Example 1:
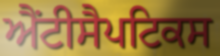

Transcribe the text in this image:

ਐਂਟੀਸੈਪਟਿਕਸ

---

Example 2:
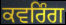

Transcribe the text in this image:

ਕਵਰਿੰਗ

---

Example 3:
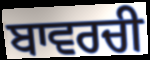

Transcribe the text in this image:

ਬਾਵਰਚੀ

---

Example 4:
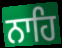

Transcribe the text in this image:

ਨਾਹਿ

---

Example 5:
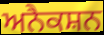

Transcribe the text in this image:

ਅਨੈਕਸ਼ਨ